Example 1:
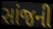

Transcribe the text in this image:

સાંજની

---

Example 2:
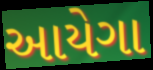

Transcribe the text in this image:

આયેગા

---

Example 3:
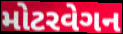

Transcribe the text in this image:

મોટરવેગન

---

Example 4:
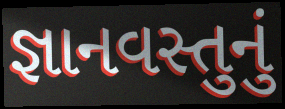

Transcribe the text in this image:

જ્ઞાનવસ્તુનું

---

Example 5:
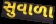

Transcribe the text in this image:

સુવાળા